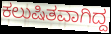
ಕಲುಷಿತವಾಗಿದ್ದ